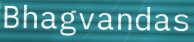
Bhagvandas